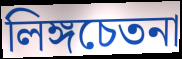
লিঙ্গচেতনা